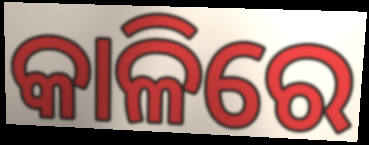
କାଳିରେ